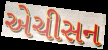
એચીસન